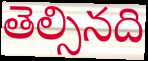
తెల్సినది